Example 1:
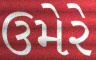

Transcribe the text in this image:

ઉમેરે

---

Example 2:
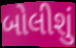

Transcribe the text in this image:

બોલીશું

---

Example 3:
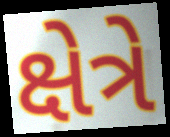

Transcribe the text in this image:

ક્ષેત્રે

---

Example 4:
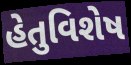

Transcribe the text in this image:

હેતુવિશેષ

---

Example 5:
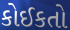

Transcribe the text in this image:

કોઈકતો